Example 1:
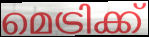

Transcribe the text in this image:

മെട്രിക്ക്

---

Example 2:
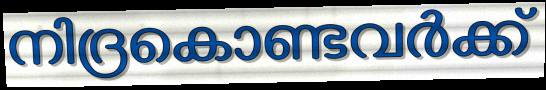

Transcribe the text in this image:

നിദ്രകൊണ്ടവർക്ക്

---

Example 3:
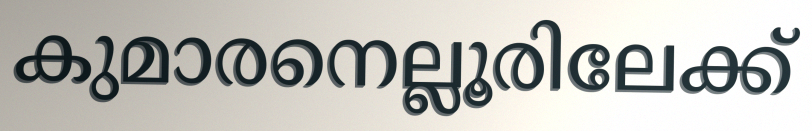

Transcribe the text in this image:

കുമാരനെല്ലൂരിലേക്ക്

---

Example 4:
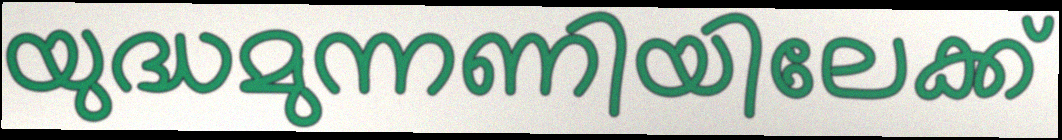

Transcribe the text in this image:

യുദ്ധമുന്നണിയിലേക്ക്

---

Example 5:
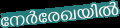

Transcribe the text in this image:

നേർരേഖയിൽ